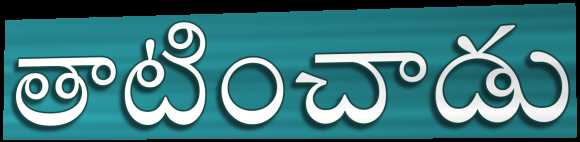
తాటించాడు